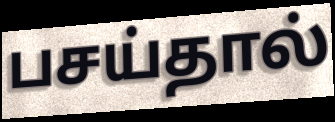
பசய்தால்